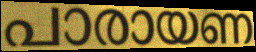
പാരായണ